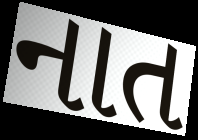
નાત